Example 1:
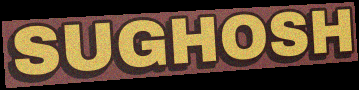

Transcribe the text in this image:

SUGHOSH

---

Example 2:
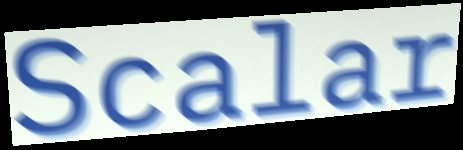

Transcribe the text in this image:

Scalar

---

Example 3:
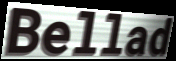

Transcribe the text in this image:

Bellad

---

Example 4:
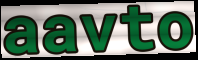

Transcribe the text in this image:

aavto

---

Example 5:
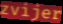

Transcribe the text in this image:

zvijer